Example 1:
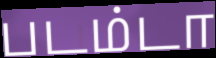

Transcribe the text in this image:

படம்டா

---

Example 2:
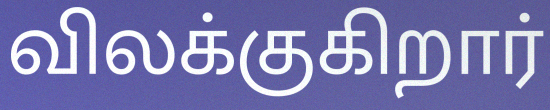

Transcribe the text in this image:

விலக்குகிறார்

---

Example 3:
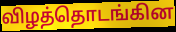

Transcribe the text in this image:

விழத்தொடங்கின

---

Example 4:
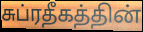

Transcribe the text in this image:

சுப்ரதீகத்தின்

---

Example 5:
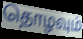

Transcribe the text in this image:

தொழவும்